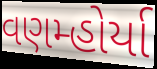
વણમ્હોર્યા